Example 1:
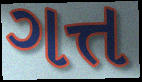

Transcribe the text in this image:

ગત્ત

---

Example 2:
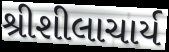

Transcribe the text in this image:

શ્રીશીલાચાર્ય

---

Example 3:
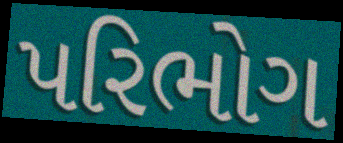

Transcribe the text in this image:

પરિભોગ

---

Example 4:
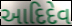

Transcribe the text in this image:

આદિદેવ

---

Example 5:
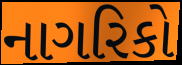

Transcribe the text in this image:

નાગરિકો